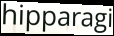
hipparagi